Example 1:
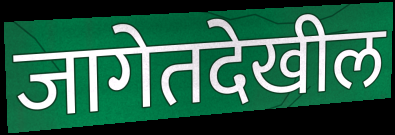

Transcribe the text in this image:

जागेतदेखील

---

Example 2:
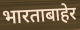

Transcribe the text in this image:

भारताबाहेर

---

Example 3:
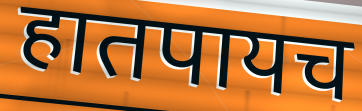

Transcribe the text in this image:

हातपायच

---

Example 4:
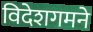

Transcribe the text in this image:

विदेशगमने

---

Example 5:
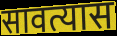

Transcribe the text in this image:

सावत्यास